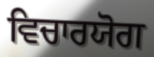
ਵਿਚਾਰਯੋਗ